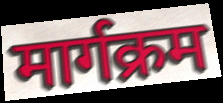
मार्गक्रम